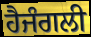
ਹੈਜੰਗਲੀ